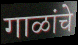
गाळांचे